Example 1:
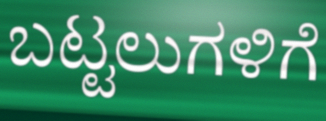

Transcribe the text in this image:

ಬಟ್ಟಲುಗಳಿಗೆ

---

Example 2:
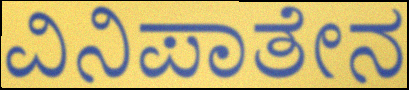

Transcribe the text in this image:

ವಿನಿಪಾತೇನ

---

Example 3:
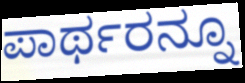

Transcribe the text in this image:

ಪಾರ್ಥರನ್ನೂ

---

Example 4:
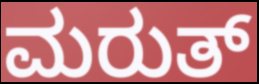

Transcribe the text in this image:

ಮರುತ್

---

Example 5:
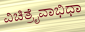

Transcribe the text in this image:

ವಿಚಿತ್ರೈವಾಭಿಧಾ